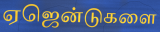
ஏஜென்டுகளை